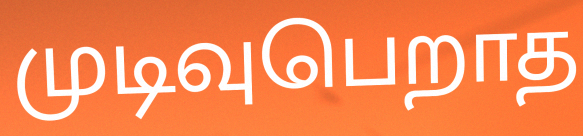
முடிவுபெறாத